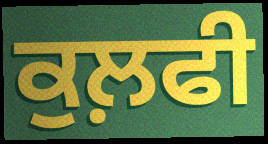
ਕੁਲ਼ਫੀ